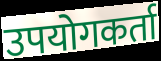
उपयोगकर्ता